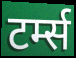
टर्म्स